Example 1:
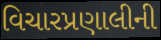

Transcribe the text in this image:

વિચારપ્રણાલીની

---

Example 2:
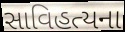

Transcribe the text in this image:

સાવિહત્યના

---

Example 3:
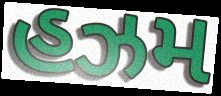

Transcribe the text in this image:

હઝમ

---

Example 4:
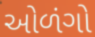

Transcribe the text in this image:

ઓળંગો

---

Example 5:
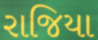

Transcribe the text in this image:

રાજિયા